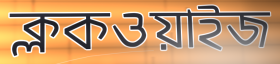
ক্লকওয়াইজ